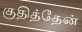
குதித்தேன்